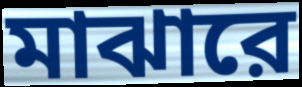
মাঝারে